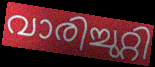
വാരിച്ചുറ്റി